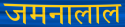
जमनालाल